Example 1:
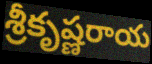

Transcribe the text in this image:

శ్రీకృష్ణరాయ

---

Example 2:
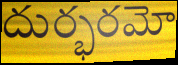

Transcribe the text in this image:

దుర్భరమో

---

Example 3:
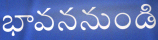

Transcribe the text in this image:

భావననుండి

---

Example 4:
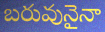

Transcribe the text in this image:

బరువునైనా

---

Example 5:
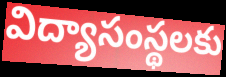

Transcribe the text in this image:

విద్యాసంస్థలకు